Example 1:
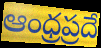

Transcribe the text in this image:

ఆంధ్రప్రదే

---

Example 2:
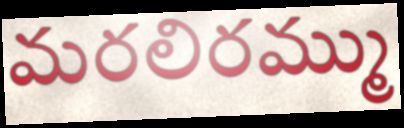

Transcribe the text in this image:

మరలిరమ్ము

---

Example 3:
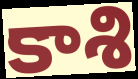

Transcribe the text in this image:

కాశి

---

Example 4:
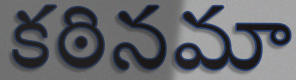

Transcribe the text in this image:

కఠినమా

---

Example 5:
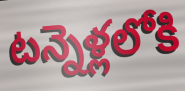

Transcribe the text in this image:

టన్నెళ్లలోకి